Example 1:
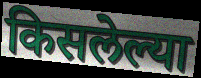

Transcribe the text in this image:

किसलेल्या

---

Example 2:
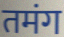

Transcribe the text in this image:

तमंग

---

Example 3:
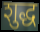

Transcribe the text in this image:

शुद्ध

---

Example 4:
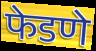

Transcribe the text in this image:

फेडणे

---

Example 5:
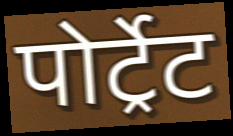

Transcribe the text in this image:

पोर्ट्रेट